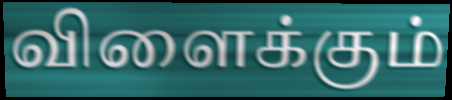
விளைக்கும்